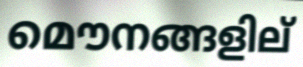
മൌനങ്ങളില്